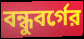
বন্ধুবর্গের